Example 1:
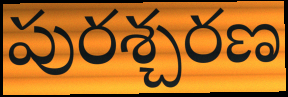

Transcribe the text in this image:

పురశ్చరణ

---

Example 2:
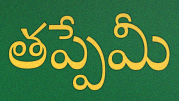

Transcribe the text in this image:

తప్పేమీ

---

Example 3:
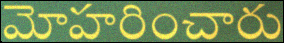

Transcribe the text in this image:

మోహరించారు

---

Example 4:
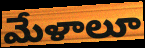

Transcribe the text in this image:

మేళాలూ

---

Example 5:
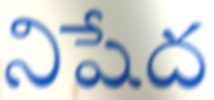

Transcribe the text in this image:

నిషేద